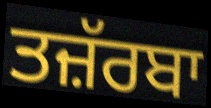
ਤਜ਼ੱਰਬਾ